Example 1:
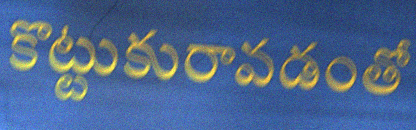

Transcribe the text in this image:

కొట్టుకురావడంతో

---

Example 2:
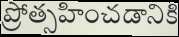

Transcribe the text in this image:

ప్రోత్సహించడానికి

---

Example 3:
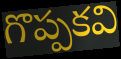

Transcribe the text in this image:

గొప్పకవి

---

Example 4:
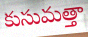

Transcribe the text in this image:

కుసుమత్తా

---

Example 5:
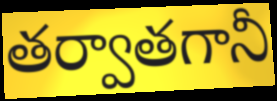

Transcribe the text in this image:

తర్వాతగానీ